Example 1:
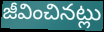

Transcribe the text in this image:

జీవించినట్లు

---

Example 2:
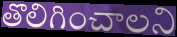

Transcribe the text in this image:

తొలిగించాలని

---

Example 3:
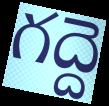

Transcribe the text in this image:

గద్దె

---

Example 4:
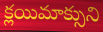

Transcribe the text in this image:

క్లయిమాక్సుని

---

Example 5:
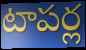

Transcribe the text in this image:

టాపర్ల